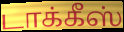
டாக்கீஸ்